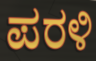
ಪರಳಿ